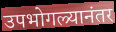
उपभोगल्यानंतर